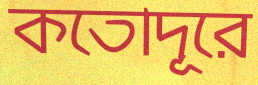
কতোদূরে